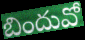
బిందువో